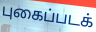
புகைப்படக்